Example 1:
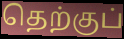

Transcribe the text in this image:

தெற்குப்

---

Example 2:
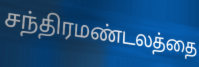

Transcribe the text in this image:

சந்திரமண்டலத்தை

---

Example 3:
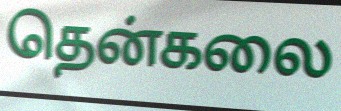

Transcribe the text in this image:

தென்கலை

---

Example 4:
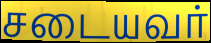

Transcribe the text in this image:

சடையவர்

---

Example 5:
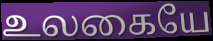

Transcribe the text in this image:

உலகையே